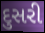
દુસરી